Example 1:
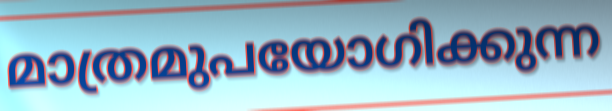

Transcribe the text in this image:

മാത്രമുപയോഗിക്കുന്ന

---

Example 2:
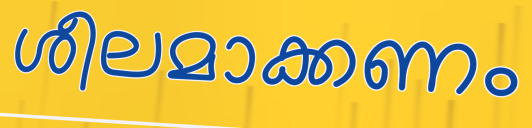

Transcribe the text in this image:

ശീലമാക്കണം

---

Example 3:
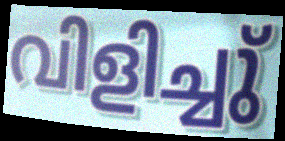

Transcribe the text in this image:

വിളിച്ചു്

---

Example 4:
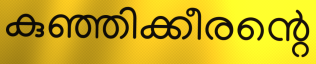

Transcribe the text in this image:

കുഞ്ഞിക്കീരന്റെ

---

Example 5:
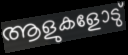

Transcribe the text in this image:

ആളുകളോടു്